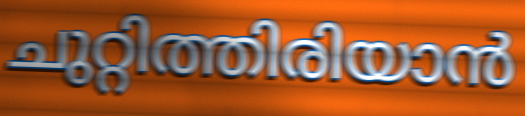
ചുറ്റിത്തിരിയാൻ